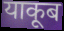
याकूब